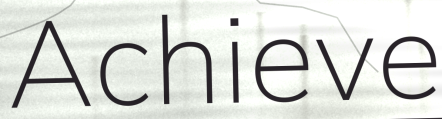
Achieve